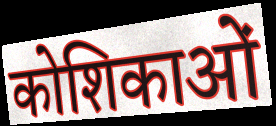
कोशिकाओं